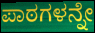
ಪಾಠಗಳನ್ನೇ